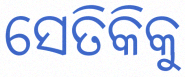
ସେତିକିକୁ